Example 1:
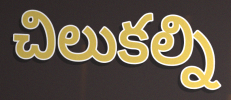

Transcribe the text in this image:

చిలుకల్ని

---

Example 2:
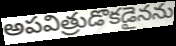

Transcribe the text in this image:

అపవిత్రుడొకడైనను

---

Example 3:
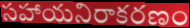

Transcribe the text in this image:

సహాయనిరాకరణం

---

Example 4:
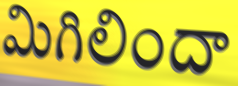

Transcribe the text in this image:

మిగిలిందా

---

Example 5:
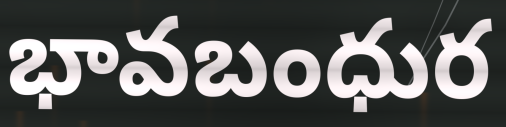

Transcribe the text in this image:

భావబంధుర